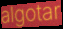
algotar